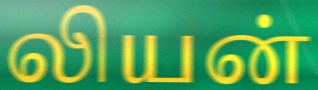
லியன்